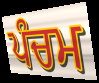
ਪੰਚਮ